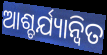
ଆଶ୍ଚର୍ଯ୍ୟାନ୍ୱିତ